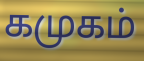
கமுகம்